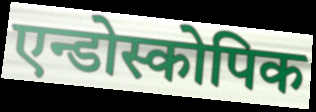
एन्डोस्कोपिक